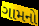
ગામનો